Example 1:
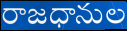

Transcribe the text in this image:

రాజధానుల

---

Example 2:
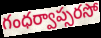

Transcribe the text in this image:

గంధర్వాప్సరసో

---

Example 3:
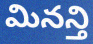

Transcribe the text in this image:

మినన్తి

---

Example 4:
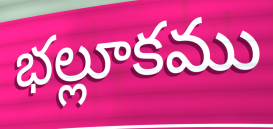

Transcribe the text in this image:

భల్లూకము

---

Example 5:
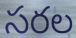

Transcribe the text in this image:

సరల